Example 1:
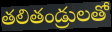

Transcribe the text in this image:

తలితండ్రులతో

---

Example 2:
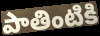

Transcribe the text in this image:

పాతింటికి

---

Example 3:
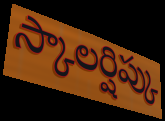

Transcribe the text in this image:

స్కాలర్షిప్కు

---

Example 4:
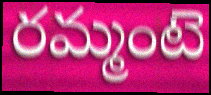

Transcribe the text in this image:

రమ్మంటె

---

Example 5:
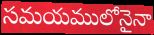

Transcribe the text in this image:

సమయములోనైనా